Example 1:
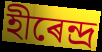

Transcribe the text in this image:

হীৰেন্দ্ৰ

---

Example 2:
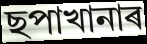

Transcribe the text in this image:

ছপাখানাৰ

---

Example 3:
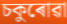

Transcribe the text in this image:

চকুৰোৱা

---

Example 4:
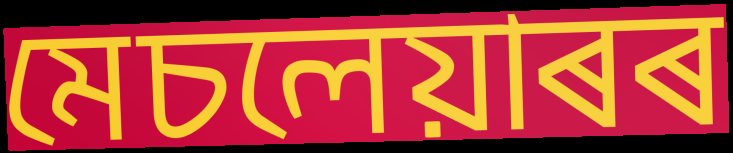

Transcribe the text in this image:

মেচলেয়াৰৰ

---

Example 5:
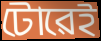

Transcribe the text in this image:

টোৱেই